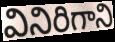
వినిరిగాని